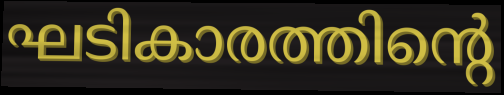
ഘടികാരത്തിന്റെ